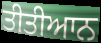
ਤੀਤੀਆਨ